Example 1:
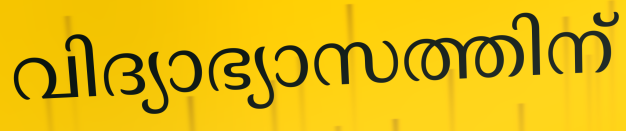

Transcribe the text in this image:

വിദ്യാഭ്യാസത്തിന്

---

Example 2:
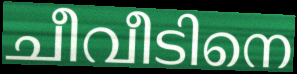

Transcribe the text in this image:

ചീവീടിനെ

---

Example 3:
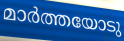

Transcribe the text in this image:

മാർത്തയോടു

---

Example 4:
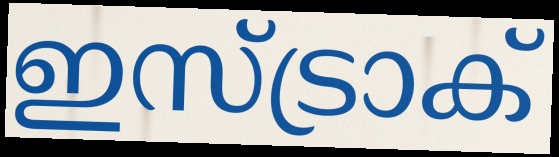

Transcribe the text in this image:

ഇസ്ട്രാക്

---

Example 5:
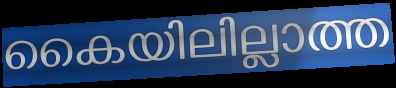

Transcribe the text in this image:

കൈയിലില്ലാത്ത